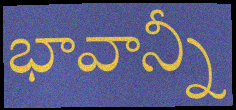
భావాన్నీ